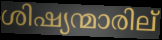
ശിഷ്യന്മാരില്